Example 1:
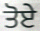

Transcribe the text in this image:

ਤੋਏ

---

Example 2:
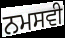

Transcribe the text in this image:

ਨਮਸਵੀ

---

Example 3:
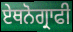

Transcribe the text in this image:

ਏਥਨੋਗ੍ਰਾਫੀ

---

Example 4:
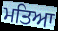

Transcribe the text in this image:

ਮਤਿਆ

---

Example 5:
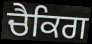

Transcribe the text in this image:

ਚੈਕਿਗ